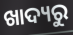
ଖାଦ୍ୟରୁ